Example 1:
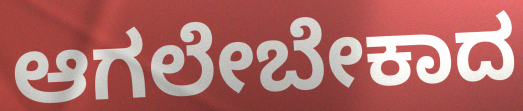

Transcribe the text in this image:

ಆಗಲೇಬೇಕಾದ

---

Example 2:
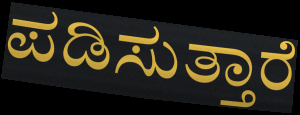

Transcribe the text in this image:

ಪಡಿಸುತ್ತಾರೆ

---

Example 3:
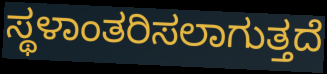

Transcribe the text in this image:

ಸ್ಥಳಾಂತರಿಸಲಾಗುತ್ತದೆ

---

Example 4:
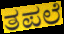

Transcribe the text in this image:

ತಪಲೆ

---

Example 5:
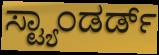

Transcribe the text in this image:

ಸ್ಟ್ಯಾಂಡರ್ಡ್